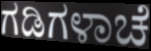
ಗಡಿಗಳಾಚೆ